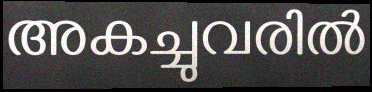
അകച്ചുവരിൽ